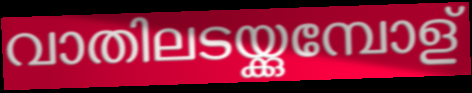
വാതിലടയ്ക്കുമ്പോള്